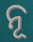
ନୂ